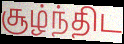
சூழ்ந்திட